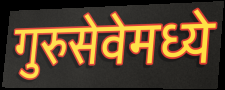
गुरुसेवेमध्ये